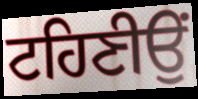
ਟਹਿਣੀਉਂ